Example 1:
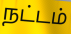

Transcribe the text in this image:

நட்டம்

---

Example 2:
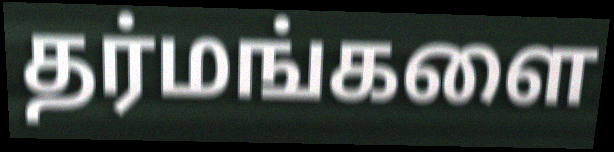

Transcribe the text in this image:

தர்மங்களை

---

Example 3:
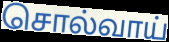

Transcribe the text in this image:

சொல்வாய்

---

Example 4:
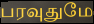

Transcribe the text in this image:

பரவுதுமே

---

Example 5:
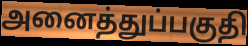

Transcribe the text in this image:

அனைத்துப்பகுதி